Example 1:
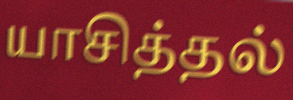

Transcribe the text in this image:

யாசித்தல்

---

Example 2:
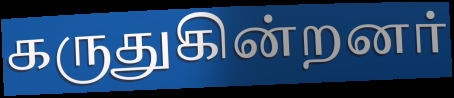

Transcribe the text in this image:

கருதுகின்றனர்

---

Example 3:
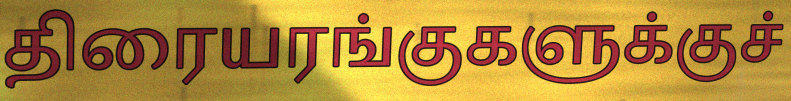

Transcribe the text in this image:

திரையரங்குகளுக்குச்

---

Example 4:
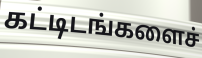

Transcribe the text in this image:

கட்டிடங்களைச்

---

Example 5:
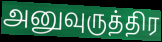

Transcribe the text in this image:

அனுவுருத்திர